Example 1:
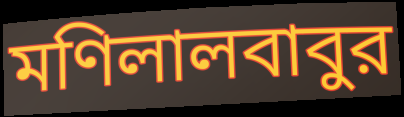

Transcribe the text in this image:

মণিলালবাবুর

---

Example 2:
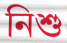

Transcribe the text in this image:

নিশু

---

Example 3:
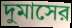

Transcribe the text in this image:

দুমাসের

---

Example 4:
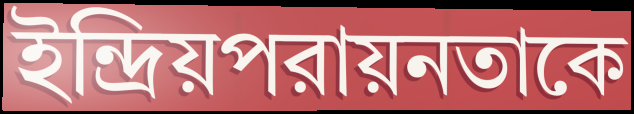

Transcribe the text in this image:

ইন্দ্রিয়পরায়নতাকে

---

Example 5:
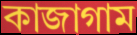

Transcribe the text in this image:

কাজাগাম